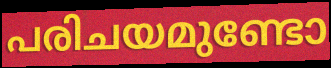
പരിചയമുണ്ടോ